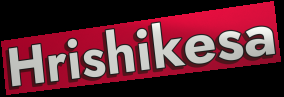
Hrishikesa